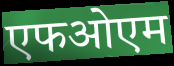
एफओएम